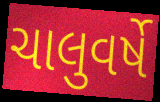
ચાલુવર્ષે